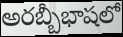
అరబ్బీభాషలో